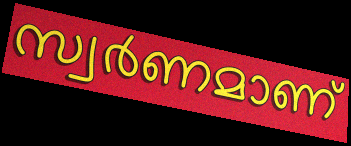
സ്വർണമാണ്